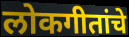
लोकगीतांचे